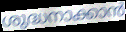
ശുദ്ധനാക്കാൻ